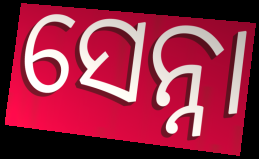
ସେନ୍ନା